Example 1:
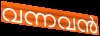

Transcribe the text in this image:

വന്നവൻ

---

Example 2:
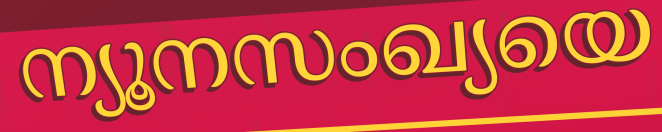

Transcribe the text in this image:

ന്യൂനസംഖ്യയെ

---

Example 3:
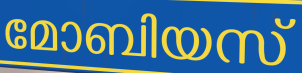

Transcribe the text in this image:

മോബിയസ്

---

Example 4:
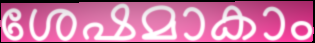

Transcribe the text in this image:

ശേഷമാകാം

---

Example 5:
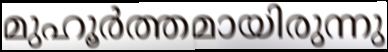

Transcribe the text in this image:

മുഹൂർത്തമായിരുന്നു